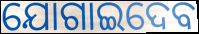
ଯୋଗାଇଦେବ